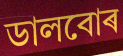
ডালবোৰ